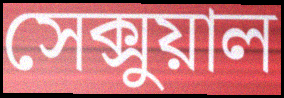
সেক্সুয়াল